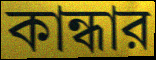
কান্ধার